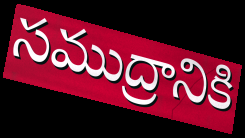
సముద్రానికి